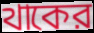
থাকের